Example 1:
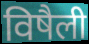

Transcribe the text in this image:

विषैली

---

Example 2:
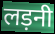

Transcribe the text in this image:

लड़नी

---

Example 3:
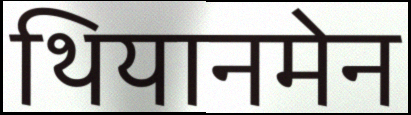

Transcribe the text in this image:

थियानमेन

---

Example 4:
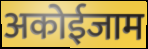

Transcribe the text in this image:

अकोईजाम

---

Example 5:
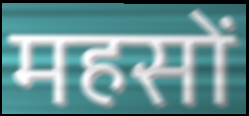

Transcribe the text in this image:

महसों